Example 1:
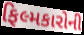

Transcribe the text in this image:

ફિલ્મકારોની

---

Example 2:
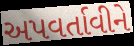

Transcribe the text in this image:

અપવર્તાવીને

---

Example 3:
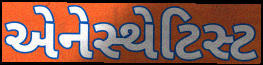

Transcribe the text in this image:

એનેસ્થેટિસ્ટ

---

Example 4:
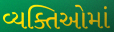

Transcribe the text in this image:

વ્યક્તિઓમાં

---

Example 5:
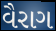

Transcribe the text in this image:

વૈરાગ